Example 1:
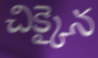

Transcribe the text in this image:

చిక్కైన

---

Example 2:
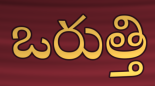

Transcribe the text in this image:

ఒరుత్తి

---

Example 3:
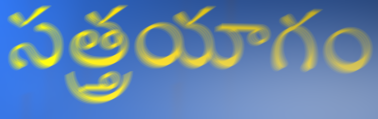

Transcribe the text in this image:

సత్త్రయాగం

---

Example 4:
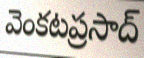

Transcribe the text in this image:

వెంకటప్రసాద్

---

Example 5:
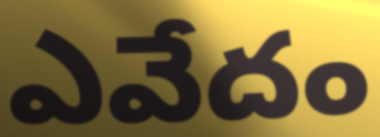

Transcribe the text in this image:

ఎవేదం